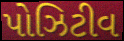
પોઝિટીવ